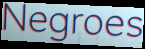
Negroes